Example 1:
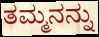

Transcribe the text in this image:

ತಮ್ಮನನ್ನು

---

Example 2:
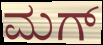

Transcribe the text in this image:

ಮಗ್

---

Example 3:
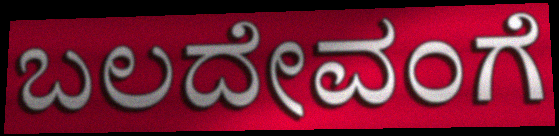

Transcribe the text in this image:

ಬಲದೇವಂಗೆ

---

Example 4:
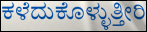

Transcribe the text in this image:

ಕಳೆದುಕೊಳ್ಳುತ್ತೀರಿ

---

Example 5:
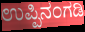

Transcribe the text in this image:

ಉಪ್ಪಿನಂಗಡಿ